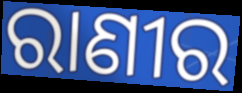
ରାଣୀର